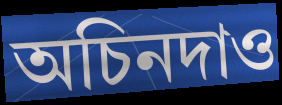
অচিনদাও